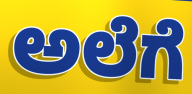
ಅಲೆಗೆ